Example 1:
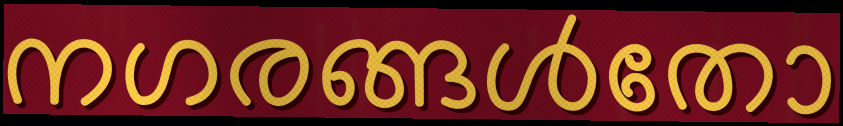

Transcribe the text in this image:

നഗരങ്ങൾതോ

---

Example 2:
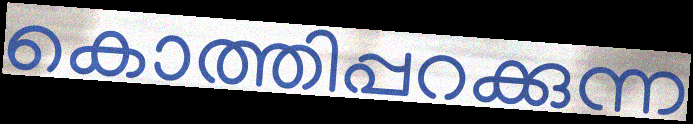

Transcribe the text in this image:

കൊത്തിപ്പറക്കുന്ന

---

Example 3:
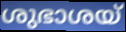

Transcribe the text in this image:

ശുഭാശയ്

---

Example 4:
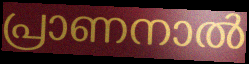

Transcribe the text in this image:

പ്രാണനാൽ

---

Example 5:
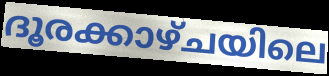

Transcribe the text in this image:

ദൂരക്കാഴ്ചയിലെ